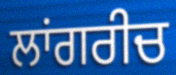
ਲਾਂਗਰੀਚ